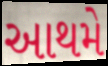
આથમે